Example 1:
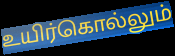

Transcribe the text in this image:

உயிர்கொல்லும்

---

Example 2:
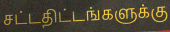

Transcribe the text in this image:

சட்டதிட்டங்களுக்கு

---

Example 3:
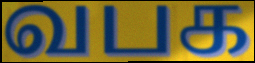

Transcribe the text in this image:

வபக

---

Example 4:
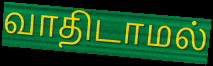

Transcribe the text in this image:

வாதிடாமல்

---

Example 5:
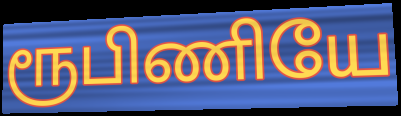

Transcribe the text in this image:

ரூபிணியே